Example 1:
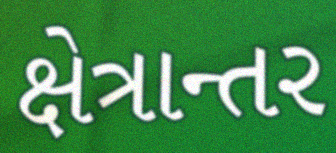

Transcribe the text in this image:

ક્ષેત્રાન્તર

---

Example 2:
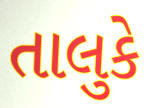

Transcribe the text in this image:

તાલુકે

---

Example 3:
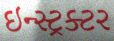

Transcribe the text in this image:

ઇન્સ્ટ્રક્ટર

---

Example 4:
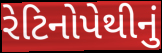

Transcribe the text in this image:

રેટિનોપેથીનું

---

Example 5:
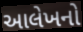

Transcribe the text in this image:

આલેખનો